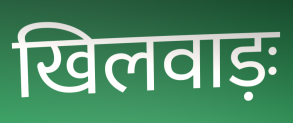
खिलवाड़ः